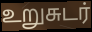
உறுசுடர்